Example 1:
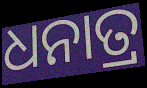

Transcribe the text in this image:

ଧନାତ୍ର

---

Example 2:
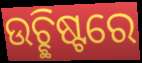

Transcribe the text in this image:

ଉଚ୍ଛିଷ୍ଟରେ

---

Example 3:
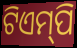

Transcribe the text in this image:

ଟିଏମ୍‌ପି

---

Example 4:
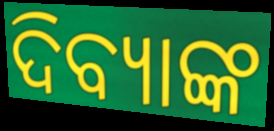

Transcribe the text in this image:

ଦିବ୍ୟାଙ୍କ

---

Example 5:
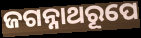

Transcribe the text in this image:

ଜଗନ୍ନାଥରୂପେ